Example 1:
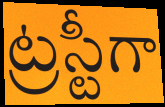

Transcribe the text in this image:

ట్రస్టీగా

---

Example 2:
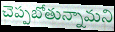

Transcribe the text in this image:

చెప్పబోతున్నామని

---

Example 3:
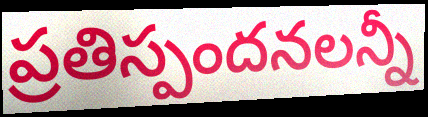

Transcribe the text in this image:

ప్రతిస్పందనలన్నీ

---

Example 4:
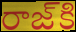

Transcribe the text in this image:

రాజ్‌కి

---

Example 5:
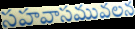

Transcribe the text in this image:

సహవాసమువలన